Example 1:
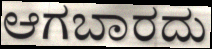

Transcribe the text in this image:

ಆಗಬಾರದು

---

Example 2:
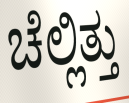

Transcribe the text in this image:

ಚೆಲ್ಲಿತ್ತು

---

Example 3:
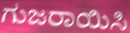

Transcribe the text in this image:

ಗುಜರಾಯಿಸಿ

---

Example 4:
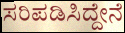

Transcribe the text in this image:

ಸರಿಪಡಿಸಿದ್ದೇನೆ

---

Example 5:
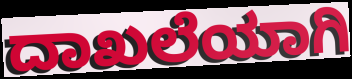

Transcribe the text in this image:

ದಾಖಲೆಯಾಗಿ